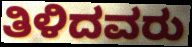
ತಿಳಿದವರು